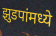
झुडपांमध्ये